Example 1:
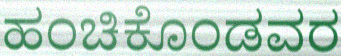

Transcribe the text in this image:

ಹಂಚಿಕೊಂಡವರ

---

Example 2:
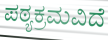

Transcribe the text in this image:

ಪಠ್ಯಕ್ರಮವಿದೆ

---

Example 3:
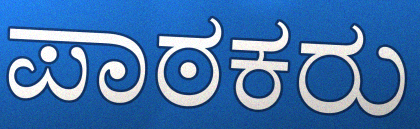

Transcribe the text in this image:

ಪಾಠಕರು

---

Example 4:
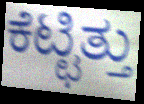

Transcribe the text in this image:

ಕೆಟ್ಟಿತ್ತು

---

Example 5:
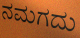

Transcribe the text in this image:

ನಮಗದು